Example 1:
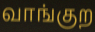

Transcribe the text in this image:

வாங்குற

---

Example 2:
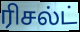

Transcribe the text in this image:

ரிசல்ட்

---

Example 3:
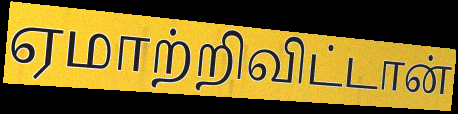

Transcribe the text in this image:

ஏமாற்றிவிட்டான்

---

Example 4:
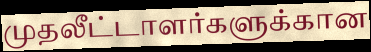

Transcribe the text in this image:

முதலீட்டாளர்களுக்கான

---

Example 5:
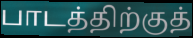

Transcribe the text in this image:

பாடத்திற்குத்